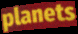
planets